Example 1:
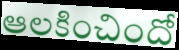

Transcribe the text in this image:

ఆలకించిందో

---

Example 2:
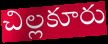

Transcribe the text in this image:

చిల్లకూరు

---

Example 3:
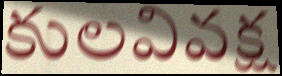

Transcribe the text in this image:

కులవివక్ష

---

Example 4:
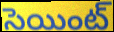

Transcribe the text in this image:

సెయింట్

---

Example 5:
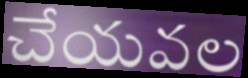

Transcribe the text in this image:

చేయవల